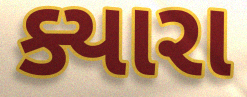
ક્યારા